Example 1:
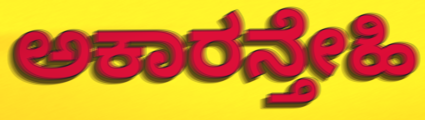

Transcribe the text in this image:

ಅಕಾರನ್ತೇಹಿ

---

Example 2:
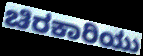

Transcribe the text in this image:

ಚಿರಕಾರಿಯು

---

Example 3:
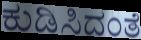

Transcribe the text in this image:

ಕುಡಿಸಿದಂತೆ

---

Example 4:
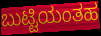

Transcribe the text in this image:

ಬುಟ್ಟಿಯಂತಹ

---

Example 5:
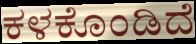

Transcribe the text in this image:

ಕಳಕೊಂಡಿದೆ